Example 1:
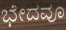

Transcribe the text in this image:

ಭೇದವೂ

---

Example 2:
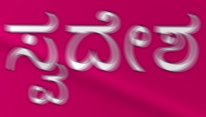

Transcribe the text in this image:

ಸ್ವದೇಶ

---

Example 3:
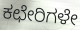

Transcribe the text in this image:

ಕಛೇರಿಗಳೇ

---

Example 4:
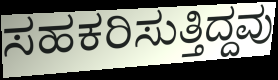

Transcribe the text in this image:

ಸಹಕರಿಸುತ್ತಿದ್ದವು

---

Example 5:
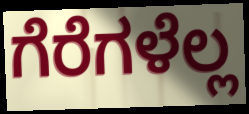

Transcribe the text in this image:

ಗೆರೆಗಳೆಲ್ಲ